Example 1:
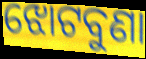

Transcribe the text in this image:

ଝୋଟବୁଣା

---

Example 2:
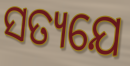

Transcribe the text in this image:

ସତ୍ୟଯେ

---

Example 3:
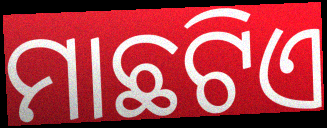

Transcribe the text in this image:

ମାଛଟିଏ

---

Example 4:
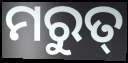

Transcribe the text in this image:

ମରୁତ୍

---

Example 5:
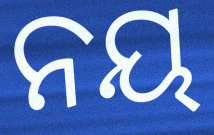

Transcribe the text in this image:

ନୟ